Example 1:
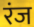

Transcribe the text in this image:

रंज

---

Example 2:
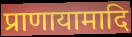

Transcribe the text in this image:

प्राणायामादि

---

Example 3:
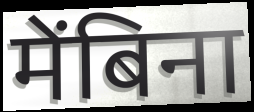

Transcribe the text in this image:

मेंबिना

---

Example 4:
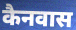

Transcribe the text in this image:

कैनवास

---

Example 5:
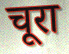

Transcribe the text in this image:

चूरा